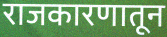
राजकारणातून